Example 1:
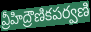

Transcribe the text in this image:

వ్రీహిద్రౌణికపర్వణి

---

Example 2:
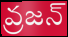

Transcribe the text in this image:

వ్రజన్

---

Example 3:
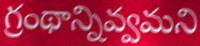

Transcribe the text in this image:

గ్రంథాన్నివ్వమని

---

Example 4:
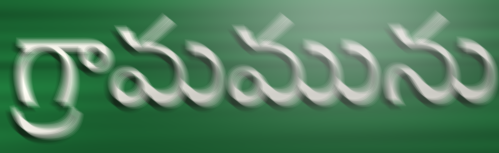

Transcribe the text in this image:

గ్రామమును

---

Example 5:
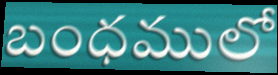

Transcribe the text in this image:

బంధములో